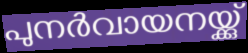
പുനർവായനയ്ക്കു്